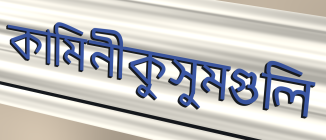
কামিনীকুসুমগুলি